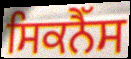
ਸਿਕਨੈੱਸ